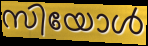
സിയോൾ